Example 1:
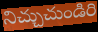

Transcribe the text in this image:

నిచ్చుచుండిరి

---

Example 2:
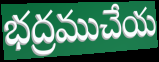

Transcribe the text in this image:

భద్రముచేయ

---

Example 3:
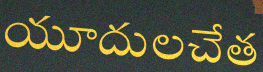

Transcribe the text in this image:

యూదులచేత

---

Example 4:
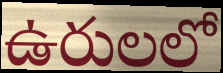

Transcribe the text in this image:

ఉరులలో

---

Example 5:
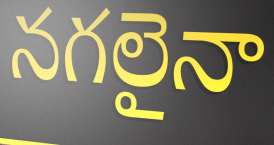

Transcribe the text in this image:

నగలైనా